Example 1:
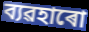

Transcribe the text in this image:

ব্যৱহাৰো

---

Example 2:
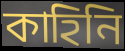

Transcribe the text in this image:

কাহিনি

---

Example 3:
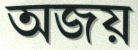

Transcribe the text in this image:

অজয়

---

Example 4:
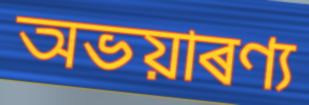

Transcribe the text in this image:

অভয়াৰণ্য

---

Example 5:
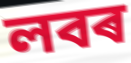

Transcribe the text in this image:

লবৰ